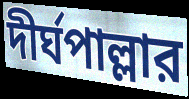
দীর্ঘপাল্লার